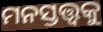
ମନସ୍ତତ୍ତ୍ୱକୁ